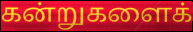
கன்றுகளைக்